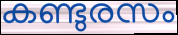
കണ്ടുരസം